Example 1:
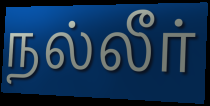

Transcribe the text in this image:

நல்லீர்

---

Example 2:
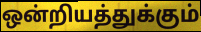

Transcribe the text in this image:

ஒன்றியத்துக்கும்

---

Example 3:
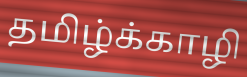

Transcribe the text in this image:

தமிழ்க்காழி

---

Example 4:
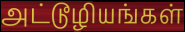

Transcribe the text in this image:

அட்டூழியங்கள்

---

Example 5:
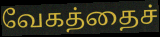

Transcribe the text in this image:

வேகத்தைச்